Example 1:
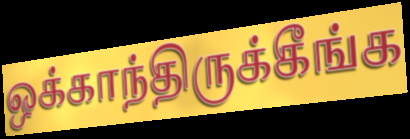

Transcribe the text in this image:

ஒக்காந்திருக்கீங்க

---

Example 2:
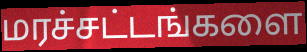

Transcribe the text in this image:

மரச்சட்டங்களை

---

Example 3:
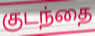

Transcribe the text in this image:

குடந்தை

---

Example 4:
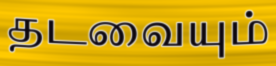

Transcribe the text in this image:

தடவையும்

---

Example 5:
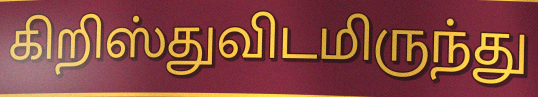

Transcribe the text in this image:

கிறிஸ்துவிடமிருந்து